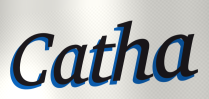
Catha